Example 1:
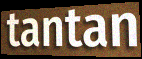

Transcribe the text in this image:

tantan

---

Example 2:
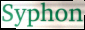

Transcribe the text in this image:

Syphon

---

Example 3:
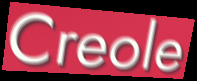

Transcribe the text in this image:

Creole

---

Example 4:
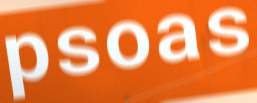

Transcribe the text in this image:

psoas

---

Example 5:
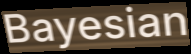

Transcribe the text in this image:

Bayesian